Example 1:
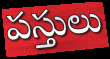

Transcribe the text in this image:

పస్తులు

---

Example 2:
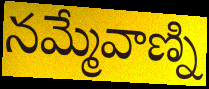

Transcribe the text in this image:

నమ్మేవాణ్ని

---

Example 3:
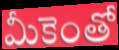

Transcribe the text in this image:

మీకెంతో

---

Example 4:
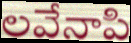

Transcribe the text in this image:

లవేనాపి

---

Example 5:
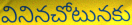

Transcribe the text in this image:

వినినచోటునకు